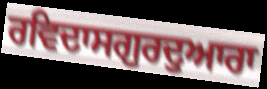
ਰਵਿਦਾਸਗੁਰਦੁਆਰਾ